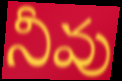
నీవు